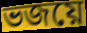
ভজয়ে